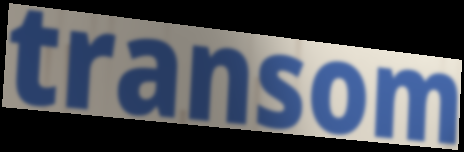
transom